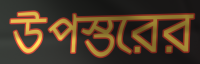
উপস্তরের